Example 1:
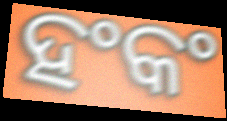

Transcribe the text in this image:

ହଂକଂ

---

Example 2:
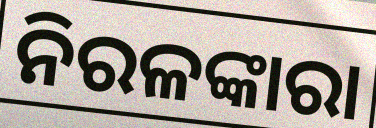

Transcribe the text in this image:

ନିରଳଙ୍କାରା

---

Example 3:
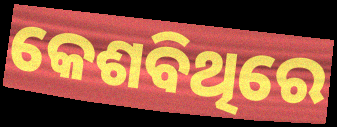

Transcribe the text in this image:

କେଶବିଥିରେ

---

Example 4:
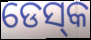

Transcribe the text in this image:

ଡେସ୍‌କ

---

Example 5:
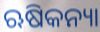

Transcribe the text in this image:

ଋଷିକନ୍ୟା